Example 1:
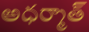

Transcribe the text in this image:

అధర్మాత్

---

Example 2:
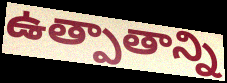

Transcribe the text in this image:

ఉత్పాతాన్ని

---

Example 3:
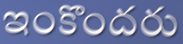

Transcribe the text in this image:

ఇంకొందరు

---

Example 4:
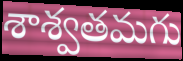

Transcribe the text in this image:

శాశ్వతమగు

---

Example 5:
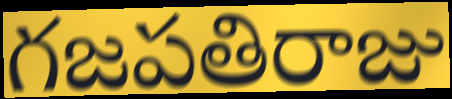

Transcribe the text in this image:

గజపతిరాజు